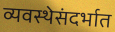
व्यवस्थेसंदर्भात